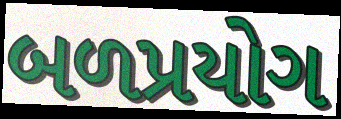
બળપ્રયોગ